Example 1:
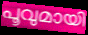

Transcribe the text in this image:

പൂവുമായി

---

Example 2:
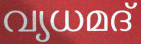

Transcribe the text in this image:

വ്യധമദ്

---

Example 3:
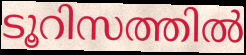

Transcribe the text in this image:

ടൂറിസത്തിൽ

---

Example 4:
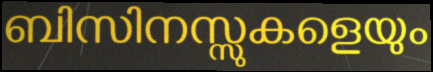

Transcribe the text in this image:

ബിസിനസ്സുകളെയും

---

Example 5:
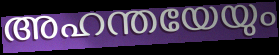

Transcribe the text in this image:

അഹന്തയേയും